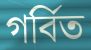
গৰ্বিত